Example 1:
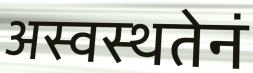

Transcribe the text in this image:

अस्वस्थतेनं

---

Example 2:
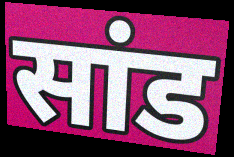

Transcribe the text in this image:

सांड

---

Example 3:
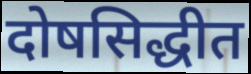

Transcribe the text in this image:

दोषसिद्धीत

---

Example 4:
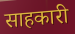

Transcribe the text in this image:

साहकारी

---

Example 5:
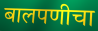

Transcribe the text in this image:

बालपणीचा